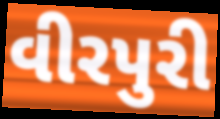
વીરપુરી